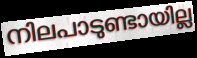
നിലപാടുണ്ടായില്ല